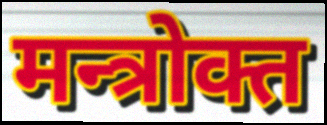
मन्त्रोक्त